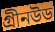
গ্রীনউড